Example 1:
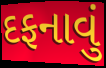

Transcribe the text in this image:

દફનાવું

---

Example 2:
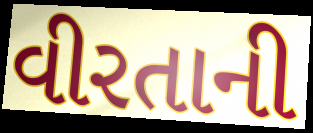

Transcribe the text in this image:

વીરતાની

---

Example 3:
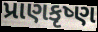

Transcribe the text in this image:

પ્રાણકૃષ્ણ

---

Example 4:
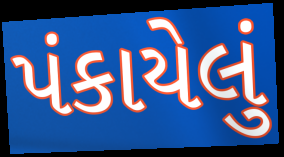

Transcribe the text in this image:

પંકાયેલું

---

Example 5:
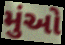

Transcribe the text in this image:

મુંઓ